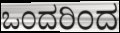
ಒಂದರಿಂದ